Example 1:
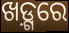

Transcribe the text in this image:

ଖଡ଼୍ଗରେ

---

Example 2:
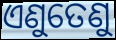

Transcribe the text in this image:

ଏଣୁତେଣୁ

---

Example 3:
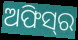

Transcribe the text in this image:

ଅଫିସ୍‌ର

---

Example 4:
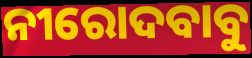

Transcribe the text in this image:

ନୀରୋଦବାବୁ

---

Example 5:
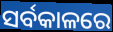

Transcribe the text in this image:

ସର୍ବକାଳରେ